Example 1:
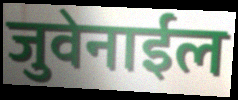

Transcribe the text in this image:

जुवेनाईल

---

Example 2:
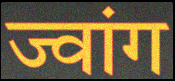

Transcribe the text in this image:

ज्वांग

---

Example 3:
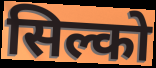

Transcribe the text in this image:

सिल्को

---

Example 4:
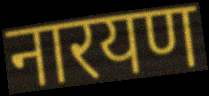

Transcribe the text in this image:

नारयण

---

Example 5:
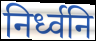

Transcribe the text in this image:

निर्ध्वनि